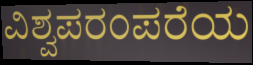
ವಿಶ್ವಪರಂಪರೆಯ